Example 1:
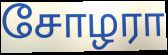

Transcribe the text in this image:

சோழரா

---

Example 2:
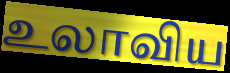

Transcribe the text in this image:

உலாவிய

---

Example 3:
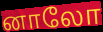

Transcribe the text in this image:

னாலோ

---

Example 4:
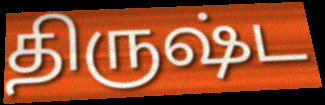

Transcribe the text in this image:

திருஷ்ட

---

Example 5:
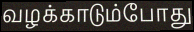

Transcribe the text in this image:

வழக்காடும்போது